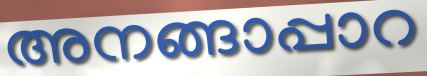
അനങ്ങാപ്പാറ